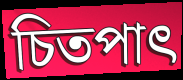
চিতপাৎ